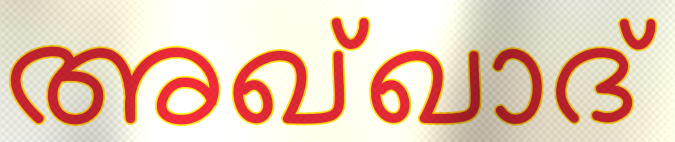
അഖ്ഖാദ്